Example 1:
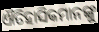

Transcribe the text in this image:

ଐତିହାସିକମାନଙ୍କୁ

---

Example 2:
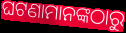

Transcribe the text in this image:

ଘଟଣାମାନଙ୍କଠାରୁ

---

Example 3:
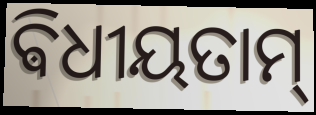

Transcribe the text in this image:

ଵିଧୀୟତାମ୍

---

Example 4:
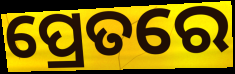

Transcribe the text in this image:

ପ୍ରେତରେ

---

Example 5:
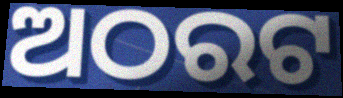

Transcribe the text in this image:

ଅଠରଟ